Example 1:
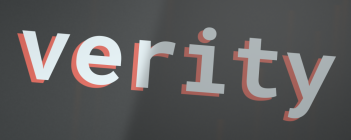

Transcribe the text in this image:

verity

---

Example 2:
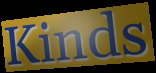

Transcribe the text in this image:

Kinds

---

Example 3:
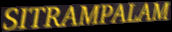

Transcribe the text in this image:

SITRAMPALAM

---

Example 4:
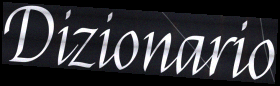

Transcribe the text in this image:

Dizionario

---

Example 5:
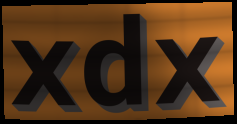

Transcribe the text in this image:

xdx